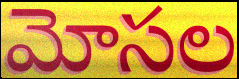
మోసల